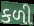
કળી